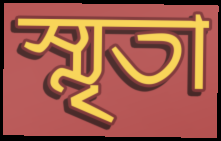
স্মৃতা